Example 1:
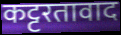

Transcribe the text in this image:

कट्टरतावाद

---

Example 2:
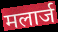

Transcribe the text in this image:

मलार्ज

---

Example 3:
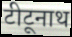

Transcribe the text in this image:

टीटूनाथ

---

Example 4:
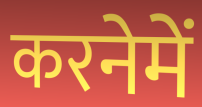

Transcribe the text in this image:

करनेमें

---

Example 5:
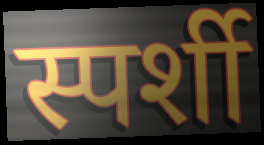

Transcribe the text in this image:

स्पर्शी